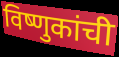
विष्णुकांची